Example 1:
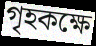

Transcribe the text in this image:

গৃহকক্ষে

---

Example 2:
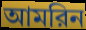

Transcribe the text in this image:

আমরিন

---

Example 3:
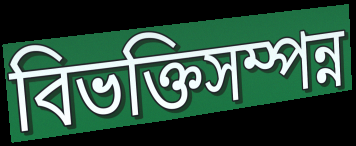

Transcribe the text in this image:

বিভক্তিসম্পন্ন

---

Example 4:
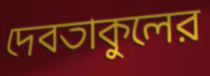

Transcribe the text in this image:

দেবতাকুলের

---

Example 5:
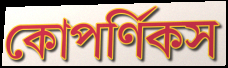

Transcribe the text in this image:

কোপর্ণিকস